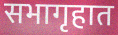
सभागृहात